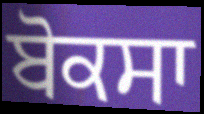
ਬੋਕਸਾ